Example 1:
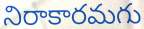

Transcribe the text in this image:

నిరాకారమగు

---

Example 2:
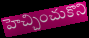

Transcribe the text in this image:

హెచ్చించుకొని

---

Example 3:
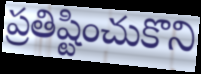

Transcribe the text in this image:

ప్రతిష్టించుకొని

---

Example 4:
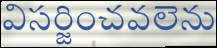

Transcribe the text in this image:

విసర్జించవలెను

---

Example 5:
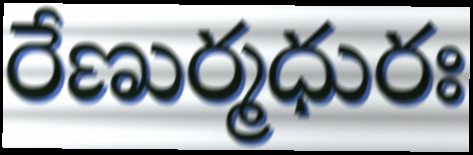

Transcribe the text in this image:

రేణుర్మధురః